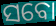
ସବୋ